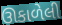
ઊકાળેલી